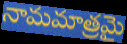
నామమాత్రమై